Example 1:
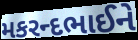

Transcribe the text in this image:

મકરન્દભાઈને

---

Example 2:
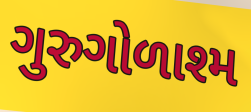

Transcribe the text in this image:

ગુરુગોળાશ્મ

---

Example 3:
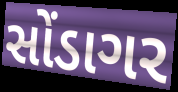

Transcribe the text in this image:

સોંડાગર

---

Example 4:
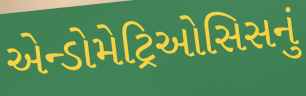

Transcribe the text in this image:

એન્ડોમેટ્રિઓસિસનું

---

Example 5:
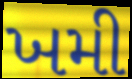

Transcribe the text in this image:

ખમી